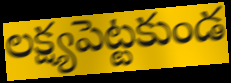
లక్ష్యపెట్టకుండ